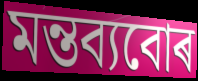
মন্তব্যবোৰ